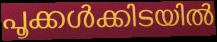
പൂക്കൾക്കിടയിൽ